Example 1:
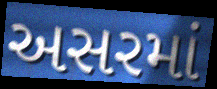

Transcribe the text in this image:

અસરમાં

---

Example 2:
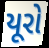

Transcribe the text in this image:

યૂરો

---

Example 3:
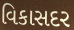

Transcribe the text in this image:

વિકાસદર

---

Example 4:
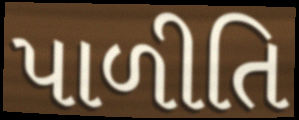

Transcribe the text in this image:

પાળીતિ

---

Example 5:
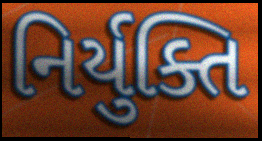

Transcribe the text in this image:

નિર્યુક્તિ